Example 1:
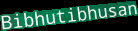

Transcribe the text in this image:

Bibhutibhusan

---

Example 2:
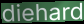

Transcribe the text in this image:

diehard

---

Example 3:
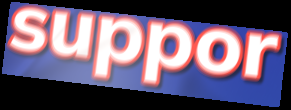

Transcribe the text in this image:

suppor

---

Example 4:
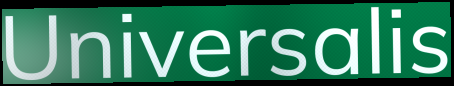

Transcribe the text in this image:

Universalis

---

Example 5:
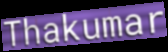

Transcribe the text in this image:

Thakumar